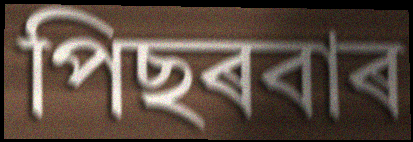
পিছৰবাৰ